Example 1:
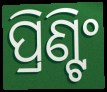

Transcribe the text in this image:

ପ୍ରିଣ୍ଟିଂ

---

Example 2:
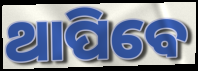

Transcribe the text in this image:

ଥାପିବେ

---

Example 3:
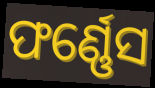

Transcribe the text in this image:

ଫର୍ଣ୍ଣେସ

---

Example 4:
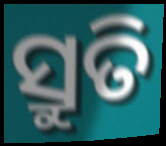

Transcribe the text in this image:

ସ୍ରୁତି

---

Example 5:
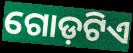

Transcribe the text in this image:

ଗୋଡ଼ଟିଏ